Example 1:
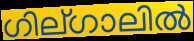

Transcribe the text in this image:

ഗില്ഗാലിൽ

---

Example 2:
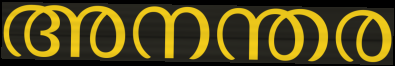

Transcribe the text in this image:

അനന്തര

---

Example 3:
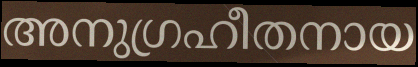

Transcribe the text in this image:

അനുഗ്രഹീതനായ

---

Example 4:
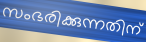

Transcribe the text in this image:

സംഭരിക്കുന്നതിന്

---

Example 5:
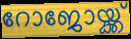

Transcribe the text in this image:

റോജോയ്ക്ക്